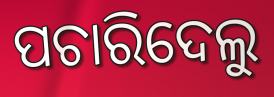
ପଚାରିଦେଲୁ